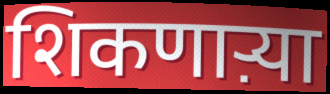
शिकणाऱ्‍या